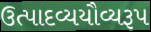
ઉત્પાદવ્યયૌવ્યરૂપ